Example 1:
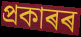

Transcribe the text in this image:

প্ৰকাৰৰ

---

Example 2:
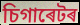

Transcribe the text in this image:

চিগাৰেটৰ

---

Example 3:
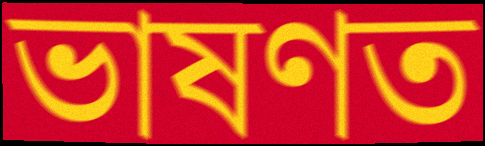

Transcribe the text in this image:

ভাষণত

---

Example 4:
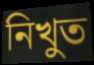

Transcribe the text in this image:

নিখুত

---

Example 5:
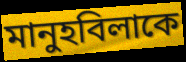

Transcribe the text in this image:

মানুহবিলাকে